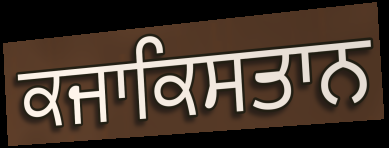
ਕਜਾਕਿਸਤਾਨ